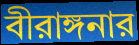
বীরাঙ্গনার